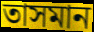
তাসমান